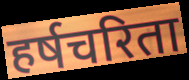
हर्षचरिता